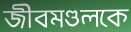
জীবমণ্ডলকে